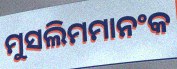
ମୁସଲିମମାନଂକ